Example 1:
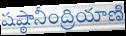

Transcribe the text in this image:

షష్ఠానీంద్రియాణి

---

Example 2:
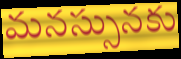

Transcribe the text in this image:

మనస్సునకు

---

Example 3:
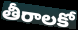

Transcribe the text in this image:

తీరాలకో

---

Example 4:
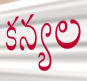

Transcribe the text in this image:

కన్యల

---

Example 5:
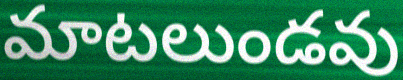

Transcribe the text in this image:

మాటలుండవు